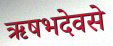
ऋषभदेवसे